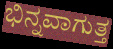
ಭಿನ್ನವಾಗುತ್ತ